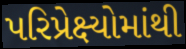
પરિપ્રેક્ષ્યોમાંથી